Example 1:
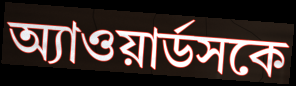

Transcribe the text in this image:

অ্যাওয়ার্ডসকে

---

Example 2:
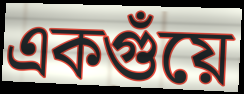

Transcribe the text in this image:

একগুঁয়ে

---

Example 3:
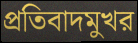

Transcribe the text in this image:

প্রতিবাদমুখর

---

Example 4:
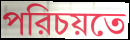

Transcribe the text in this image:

পরিচয়তে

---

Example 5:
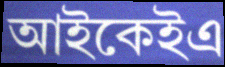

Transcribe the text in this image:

আইকেইএ